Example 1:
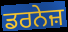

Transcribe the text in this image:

ਡਰਨੇਜ਼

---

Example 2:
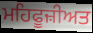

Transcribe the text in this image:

ਮਹਿਫੂਜ਼ੀਅਤ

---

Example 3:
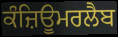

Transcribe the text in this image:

ਕੰਜ਼ਿਊਮਰਲੈਬ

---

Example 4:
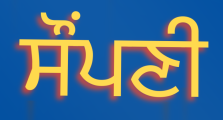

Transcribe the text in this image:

ਸੌਂਪਣੀ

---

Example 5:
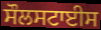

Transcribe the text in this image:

ਸੌਲਸਟਾਈਸ